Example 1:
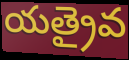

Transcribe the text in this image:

యత్రైవ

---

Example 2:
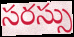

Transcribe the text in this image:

సరస్సు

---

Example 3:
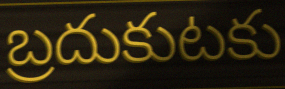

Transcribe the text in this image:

బ్రదుకుటకు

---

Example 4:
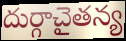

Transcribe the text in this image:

దుర్గాచైతన్య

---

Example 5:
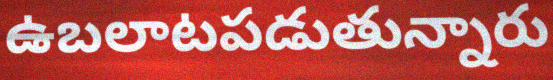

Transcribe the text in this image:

ఉబలాటపడుతున్నారు